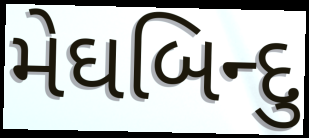
મેઘબિન્દુ